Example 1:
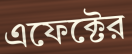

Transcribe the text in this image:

এফেক্টের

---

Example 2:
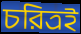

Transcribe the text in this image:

চরিত্রই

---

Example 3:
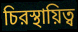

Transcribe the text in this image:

চিরস্থায়িত্ব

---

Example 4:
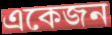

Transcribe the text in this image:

একেজন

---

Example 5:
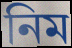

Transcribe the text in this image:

নিম